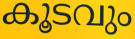
കൂടവും